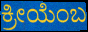
ಕ್ರೀಯೆಂಬ